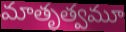
మాతృత్వమూ